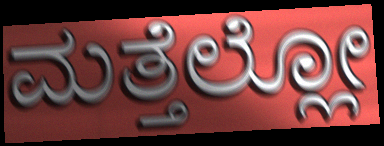
ಮತ್ತೆಲ್ಲೋ